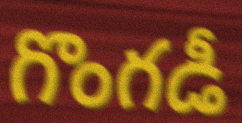
గొంగడీ